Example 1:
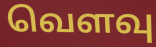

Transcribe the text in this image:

வெளவு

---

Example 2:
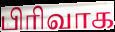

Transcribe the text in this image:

பிரிவாக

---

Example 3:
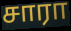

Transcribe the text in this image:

சாரா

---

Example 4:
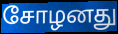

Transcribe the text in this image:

சோழனது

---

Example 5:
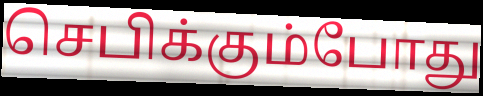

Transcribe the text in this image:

செபிக்கும்போது